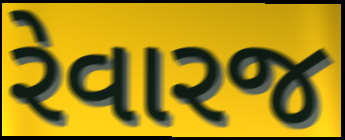
રેવારજ